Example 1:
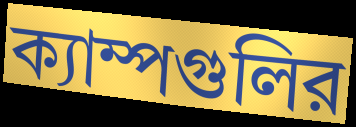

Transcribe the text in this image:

ক্যাম্পগুলির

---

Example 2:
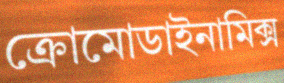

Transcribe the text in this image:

ক্রোমোডাইনামিক্স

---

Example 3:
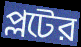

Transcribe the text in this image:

প্লটের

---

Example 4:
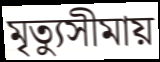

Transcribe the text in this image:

মৃত্যুসীমায়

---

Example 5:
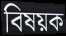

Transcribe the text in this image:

বিষয়ক